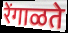
रेंगाळते